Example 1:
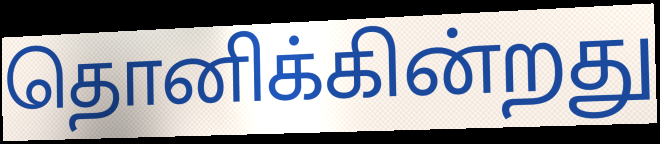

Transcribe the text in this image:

தொனிக்கின்றது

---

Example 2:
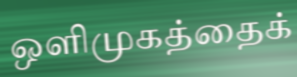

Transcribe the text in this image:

ஒளிமுகத்தைக்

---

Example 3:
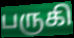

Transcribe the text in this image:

பருகி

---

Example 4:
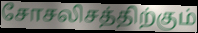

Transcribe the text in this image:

சோசலிசத்திற்கும்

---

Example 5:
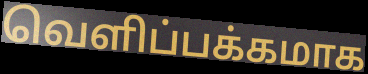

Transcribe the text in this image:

வெளிப்பக்கமாக